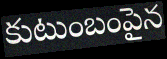
కుటుంబంపైన